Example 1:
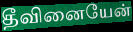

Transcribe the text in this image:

தீவினையேன்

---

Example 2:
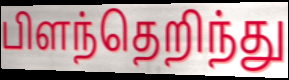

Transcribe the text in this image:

பிளந்தெறிந்து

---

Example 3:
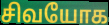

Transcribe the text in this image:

சிவயோக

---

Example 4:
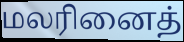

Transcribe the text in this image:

மலரினைத்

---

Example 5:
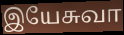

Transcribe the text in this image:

இயேசுவா